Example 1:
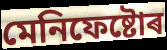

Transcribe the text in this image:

মেনিফেষ্টোৰ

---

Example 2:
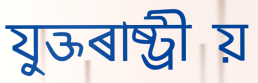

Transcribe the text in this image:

যুক্তৰাষ্ট্ৰীয়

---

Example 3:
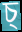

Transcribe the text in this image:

চ্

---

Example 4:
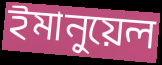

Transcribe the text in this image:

ইমানুয়েল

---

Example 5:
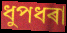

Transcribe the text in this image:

ধুপধৰা